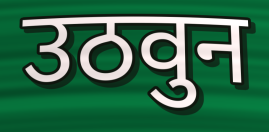
उठवुन